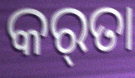
କର୍‌ତା